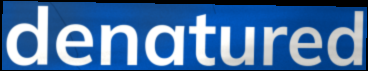
denatured